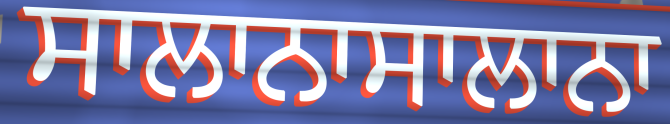
ਸਾਲਾਨਾਸਾਲਾਨਾ